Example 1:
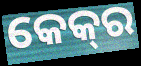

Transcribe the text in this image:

କେକ୍‌ର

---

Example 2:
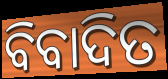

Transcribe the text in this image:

ବିବାଦିତ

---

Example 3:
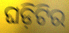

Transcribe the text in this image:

ଘଡ଼ିଟିର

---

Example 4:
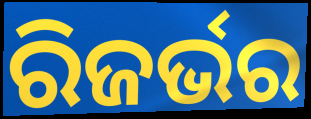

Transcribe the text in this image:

ରିଜର୍ଭର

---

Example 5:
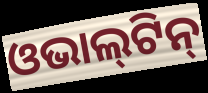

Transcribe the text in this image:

ଓଭାଲ୍‍ଟିନ୍